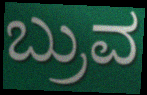
ಬ್ರುವ